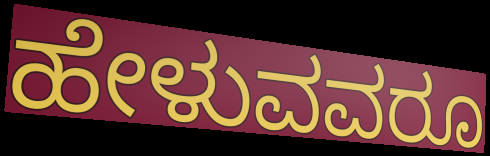
ಹೇಳುವವರೂ